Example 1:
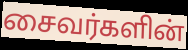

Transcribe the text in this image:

சைவர்களின்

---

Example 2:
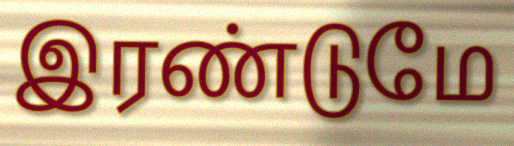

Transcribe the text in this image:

இரண்டுமே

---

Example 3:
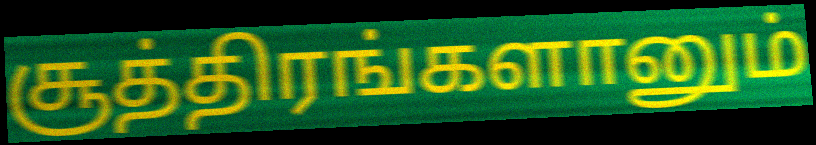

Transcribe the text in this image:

சூத்திரங்களானும்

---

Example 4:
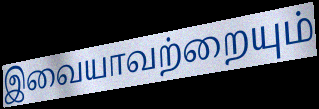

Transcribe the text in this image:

இவையாவற்றையும்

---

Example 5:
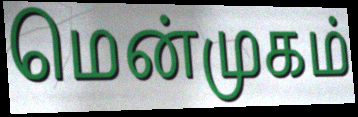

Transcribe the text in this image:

மென்முகம்